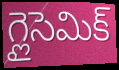
గ్లైసెమిక్